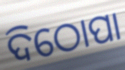
ଦିଠୋପା